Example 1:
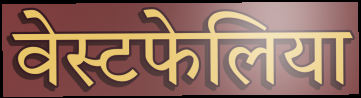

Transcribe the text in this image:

वेस्टफेलिया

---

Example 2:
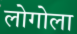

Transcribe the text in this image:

लोगोला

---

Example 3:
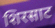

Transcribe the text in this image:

शिरसाट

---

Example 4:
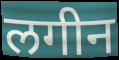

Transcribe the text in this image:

लगीन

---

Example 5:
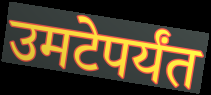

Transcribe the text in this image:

उमटेपर्यंत